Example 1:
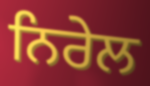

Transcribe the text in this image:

ਨਿਰੇਲ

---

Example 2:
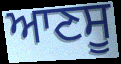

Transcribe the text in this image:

ਆਣਸੂ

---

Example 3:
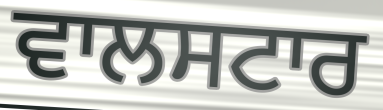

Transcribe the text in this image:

ਵਾਲਸਟਾਰ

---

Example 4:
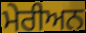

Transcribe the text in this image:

ਮੇਰੀਅਨ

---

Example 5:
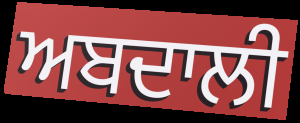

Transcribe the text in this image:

ਅਬਦਾਲੀ